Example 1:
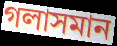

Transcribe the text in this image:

গলাসমান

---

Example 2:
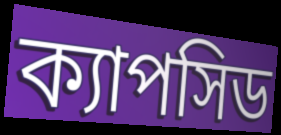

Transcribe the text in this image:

ক্যাপসিড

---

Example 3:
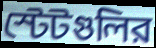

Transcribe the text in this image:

স্টেটগুলির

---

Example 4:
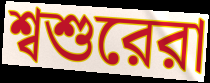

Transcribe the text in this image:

শ্বশুরেরা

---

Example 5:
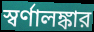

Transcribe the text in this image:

স্বর্ণালঙ্কার